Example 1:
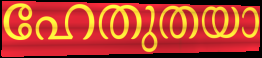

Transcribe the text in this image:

ഹേതുതയാ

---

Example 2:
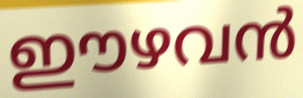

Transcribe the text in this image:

ഈഴവൻ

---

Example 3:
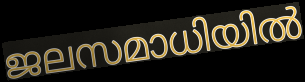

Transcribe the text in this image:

ജലസമാധിയിൽ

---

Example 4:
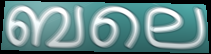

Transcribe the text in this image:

ബലെ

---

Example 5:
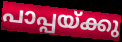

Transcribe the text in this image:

പാപ്പയ്ക്കു